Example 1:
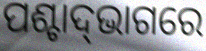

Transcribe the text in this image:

ପଶ୍ଚାଦ୍‍ଭାଗରେ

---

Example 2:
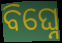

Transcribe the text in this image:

ବିଘ୍ନେ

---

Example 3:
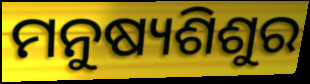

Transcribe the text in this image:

ମନୁଷ୍ୟଶିଶୁର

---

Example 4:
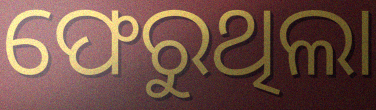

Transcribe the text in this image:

ଫେରୁଥିଲା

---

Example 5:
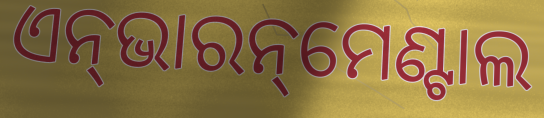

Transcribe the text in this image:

ଏନ୍‌ଭାରନ୍‌ମେଣ୍ଟାଲ